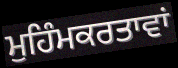
ਮੁਹਿੰਮਕਰਤਾਵਾਂ